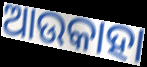
ଆଉକାହା